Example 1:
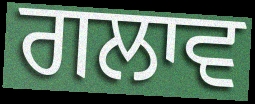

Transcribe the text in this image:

ਗਲਾਵ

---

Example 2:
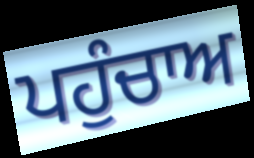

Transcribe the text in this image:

ਪਹੁੰਚਾਅ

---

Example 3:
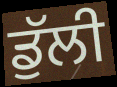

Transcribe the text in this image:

ਡੁੱਲੀ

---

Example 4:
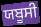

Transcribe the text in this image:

ਯਬੂਸੀ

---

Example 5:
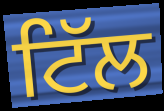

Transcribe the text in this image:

ਟਿੱਲ